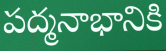
పద్మనాభానికి